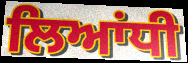
ਲਿਆਂਧੀ